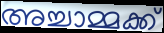
അച്ചാമ്മക്ക്